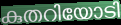
കുതറിയോടി